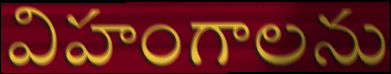
విహంగాలను